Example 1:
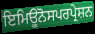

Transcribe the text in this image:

ਇਮਿਊਨੋਸਪਰਪ੍ਰੇਸ਼ਨ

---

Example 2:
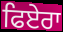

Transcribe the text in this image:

ਫਿਏਰਾ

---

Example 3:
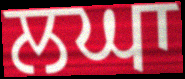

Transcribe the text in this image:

ਲਘਾ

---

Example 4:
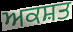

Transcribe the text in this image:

ਅਕਸ਼ਤ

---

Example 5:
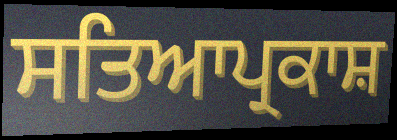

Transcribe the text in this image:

ਸਤਿਆਪ੍ਰਕਾਸ਼